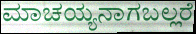
ಮಾಚಯ್ಯನಾಗಬಲ್ಲರೆ